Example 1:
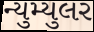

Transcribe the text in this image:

ન્યુમ્યુલર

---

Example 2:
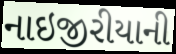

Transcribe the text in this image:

નાઇજીરીયાની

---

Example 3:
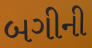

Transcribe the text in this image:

બગીની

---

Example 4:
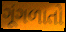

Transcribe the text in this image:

ગૂંગળાતો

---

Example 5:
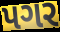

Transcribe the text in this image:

પગર